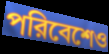
পরিবেশেও